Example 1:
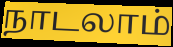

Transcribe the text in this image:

நாடலாம்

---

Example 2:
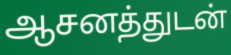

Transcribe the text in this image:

ஆசனத்துடன்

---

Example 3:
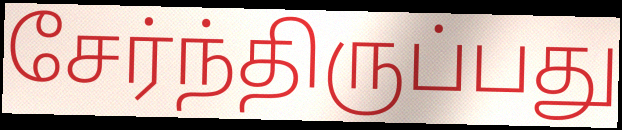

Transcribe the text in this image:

சேர்ந்திருப்பது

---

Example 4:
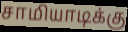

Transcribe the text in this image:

சாமியாடிக்கு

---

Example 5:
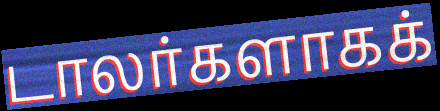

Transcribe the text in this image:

டாலர்களாகக்